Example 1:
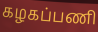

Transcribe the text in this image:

கழகப்பணி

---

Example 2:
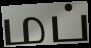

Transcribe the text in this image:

மப்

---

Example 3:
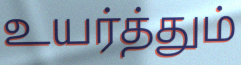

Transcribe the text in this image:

உயர்த்தும்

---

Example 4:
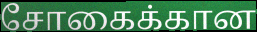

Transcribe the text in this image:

சோகைக்கான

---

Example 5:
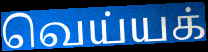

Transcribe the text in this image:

வெய்யக்